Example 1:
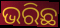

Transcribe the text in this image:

ଭରିଛ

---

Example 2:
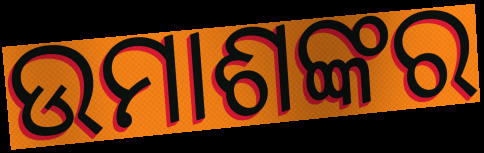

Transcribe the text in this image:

ଉମାଶଙ୍କର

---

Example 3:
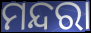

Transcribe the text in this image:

ମନ୍ଦରା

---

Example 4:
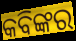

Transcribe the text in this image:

କବିଙ୍କର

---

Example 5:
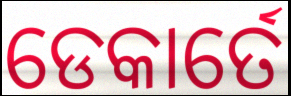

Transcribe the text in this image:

ଡେକାର୍ତେ